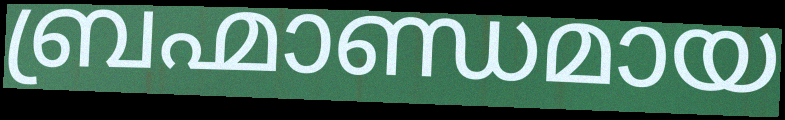
ബ്രഹ്മാണ്ഡമായ